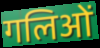
गलिओं